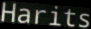
Harits